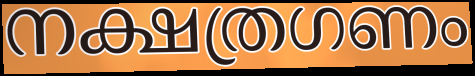
നക്ഷത്രഗണം